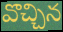
వొచ్చిన